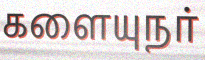
களையுநர்